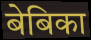
बेबिका